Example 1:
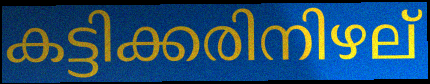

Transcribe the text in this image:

കട്ടിക്കരിനിഴല്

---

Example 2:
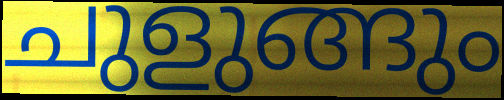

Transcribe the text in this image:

ചുളുങ്ങും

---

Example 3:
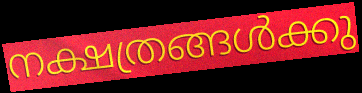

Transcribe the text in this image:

നക്ഷത്രങ്ങൾക്കു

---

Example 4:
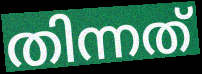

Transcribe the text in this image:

തിന്നത്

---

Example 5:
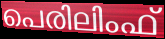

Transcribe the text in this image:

പെരിലിംഫ്